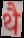
थै